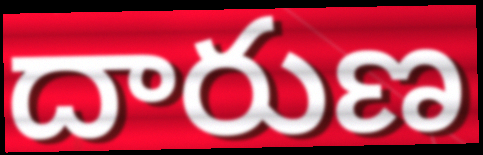
దారుణ